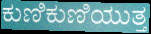
ಕುಣಿಕುಣಿಯುತ್ತ